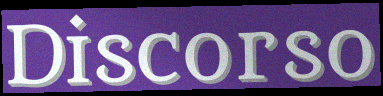
Discorso